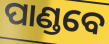
ପାଣ୍ଡବେ